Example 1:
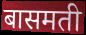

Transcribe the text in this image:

बासमती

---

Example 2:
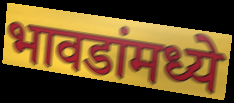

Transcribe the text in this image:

भावडांमध्ये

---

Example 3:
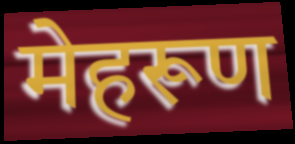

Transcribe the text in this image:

मेहरूण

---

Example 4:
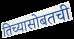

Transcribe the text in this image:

तिच्यासोबतची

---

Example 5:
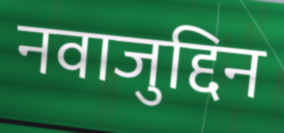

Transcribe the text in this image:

नवाजुद्दिन